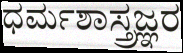
ಧರ್ಮಶಾಸ್ತ್ರಜ್ಞರ